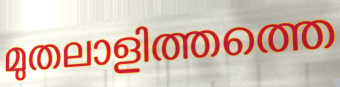
മുതലാളിത്തത്തെ